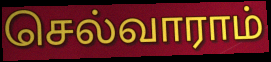
செல்வாராம்